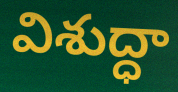
విశుద్ధా